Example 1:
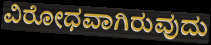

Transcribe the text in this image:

ವಿರೋಧವಾಗಿರುವುದು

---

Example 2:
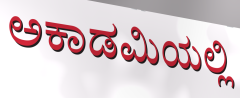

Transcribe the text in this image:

ಅಕಾಡಮಿಯಲ್ಲಿ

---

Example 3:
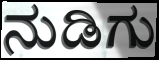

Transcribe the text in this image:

ನುಡಿಗು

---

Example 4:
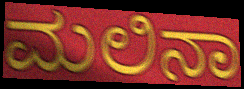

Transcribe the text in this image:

ಮಲಿನಾ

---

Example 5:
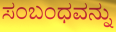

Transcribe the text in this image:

ಸಂಬಂಧವನ್ನು